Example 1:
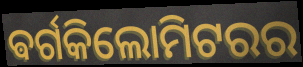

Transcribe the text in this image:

ଵର୍ଗକିଲୋମିଟରର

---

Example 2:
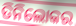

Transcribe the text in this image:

ତିନିଲୋକର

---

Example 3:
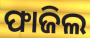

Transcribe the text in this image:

ଫାଜିଲ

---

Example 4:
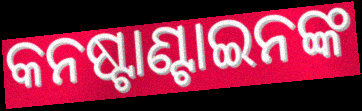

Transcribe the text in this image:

କନଷ୍ଟାଣ୍ଟାଇନଙ୍କ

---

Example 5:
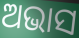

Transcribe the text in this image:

ଅଭାସ